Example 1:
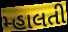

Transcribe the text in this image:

મ્હાલતી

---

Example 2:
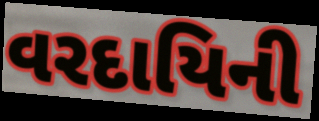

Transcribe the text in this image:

વરદાયિની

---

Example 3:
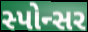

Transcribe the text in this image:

સ્પોન્સર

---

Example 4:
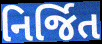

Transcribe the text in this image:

નિર્જિત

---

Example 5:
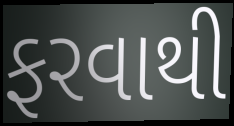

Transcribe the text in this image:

ફરવાથી